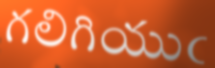
గలిగియుఁ